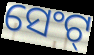
ସେଂଟ୍